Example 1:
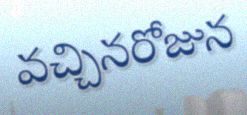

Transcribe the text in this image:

వచ్చినరోజున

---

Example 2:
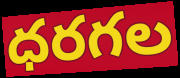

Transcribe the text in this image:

ధరగల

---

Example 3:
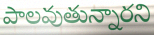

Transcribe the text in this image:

పాలవుతున్నారని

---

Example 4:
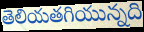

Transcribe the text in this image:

తెలియతగియున్నది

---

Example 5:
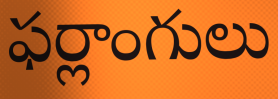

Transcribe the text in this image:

ఫర్లాంగులు